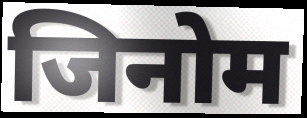
जिनोम